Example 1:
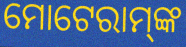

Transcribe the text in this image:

ମୋଟେରାମ୍‌ଙ୍କ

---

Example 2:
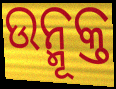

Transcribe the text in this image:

ଉନ୍ମୂକ୍ତ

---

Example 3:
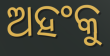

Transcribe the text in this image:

ଅହଂକୁ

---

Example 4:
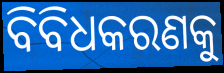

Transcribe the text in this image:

ବିବିଧକରଣକୁ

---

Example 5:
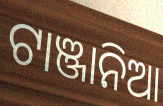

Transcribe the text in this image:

ଟାଞ୍ଜାନିଆ